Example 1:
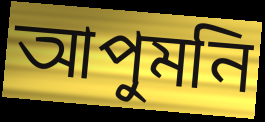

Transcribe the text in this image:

আপুমনি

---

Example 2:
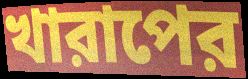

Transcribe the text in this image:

খারাপের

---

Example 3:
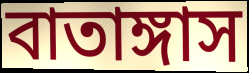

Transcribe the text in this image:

বাতাঙ্গাস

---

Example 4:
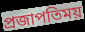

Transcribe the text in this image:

প্রজাপতিময়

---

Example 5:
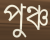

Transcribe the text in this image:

পুঞ্চ